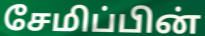
சேமிப்பின்